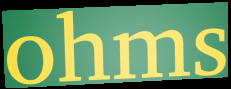
ohms